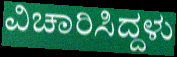
ವಿಚಾರಿಸಿದ್ದಳು